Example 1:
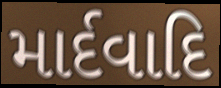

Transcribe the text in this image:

માર્દવાદિ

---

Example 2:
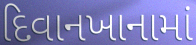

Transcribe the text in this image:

દિવાનખાનામાં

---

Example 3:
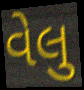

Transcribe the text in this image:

વેલુ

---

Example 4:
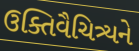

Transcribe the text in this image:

ઉક્તિવૈચિત્ર્યને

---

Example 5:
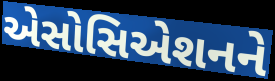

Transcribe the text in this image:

એસોસિએશનને